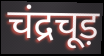
चंद्रचूड़